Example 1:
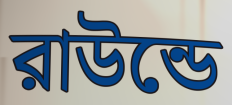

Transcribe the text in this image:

রাউন্ডে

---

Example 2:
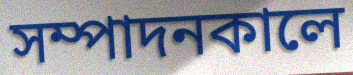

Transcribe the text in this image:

সম্পাদনকালে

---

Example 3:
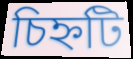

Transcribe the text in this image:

চিহ্নটি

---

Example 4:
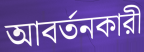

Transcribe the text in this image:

আবর্তনকারী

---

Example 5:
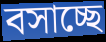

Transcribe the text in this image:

বসাচ্ছে